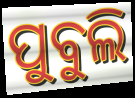
ପୁବୁଲି